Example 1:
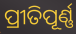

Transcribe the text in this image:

ପ୍ରୀତିପୂର୍ଣ୍ଣ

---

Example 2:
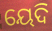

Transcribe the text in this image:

ୟେଦି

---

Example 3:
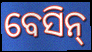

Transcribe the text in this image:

ବେସିନ୍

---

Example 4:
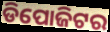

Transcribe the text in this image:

ଡିପୋଜିଟର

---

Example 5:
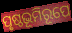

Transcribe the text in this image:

ପୃଷ୍ଠଭୂମିରୂପେ